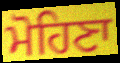
ਮੋਹਿਣਾ